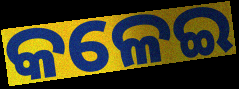
କଳେଇ